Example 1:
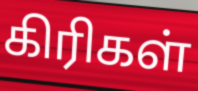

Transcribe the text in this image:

கிரிகள்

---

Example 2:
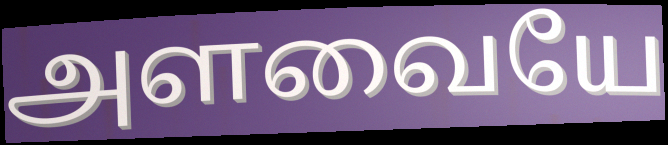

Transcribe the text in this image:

அளவையே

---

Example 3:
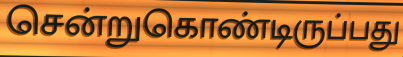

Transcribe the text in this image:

சென்றுகொண்டிருப்பது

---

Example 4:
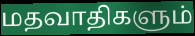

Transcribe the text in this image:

மதவாதிகளும்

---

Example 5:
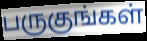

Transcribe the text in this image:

பருகுங்கள்